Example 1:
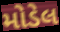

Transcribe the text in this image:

મોડેલ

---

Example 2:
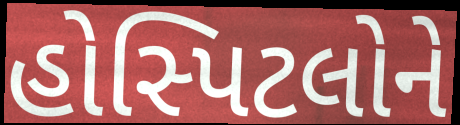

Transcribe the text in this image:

હોસ્પિટલોને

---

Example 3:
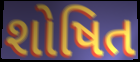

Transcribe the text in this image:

શોષિત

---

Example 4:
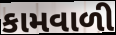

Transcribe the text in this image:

કામવાળી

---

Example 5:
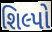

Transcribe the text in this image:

શિલ્પો